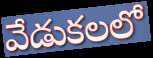
వేడుకలలో